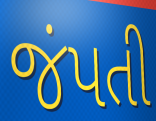
જંપતી